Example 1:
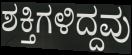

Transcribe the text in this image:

ಶಕ್ತಿಗಳಿದ್ದವು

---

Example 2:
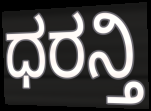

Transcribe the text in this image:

ಧರನ್ತಿ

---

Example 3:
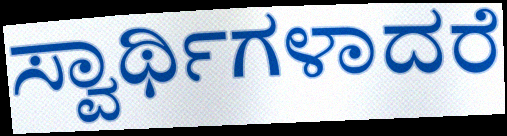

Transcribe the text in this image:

ಸ್ವಾರ್ಥಿಗಳಾದರೆ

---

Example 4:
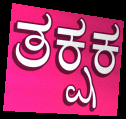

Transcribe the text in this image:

ತಕ್ಷಕ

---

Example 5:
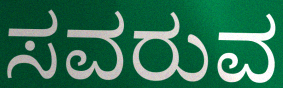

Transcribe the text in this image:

ಸವರುವ